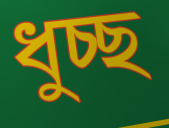
ধুচ্ছ